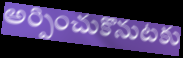
అర్పించుకొనుటకు